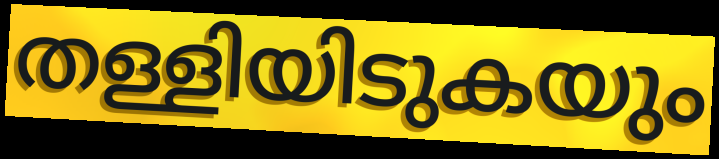
തള്ളിയിടുകയും